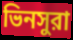
ভিনসুরা